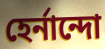
হের্নান্দো